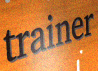
trainer